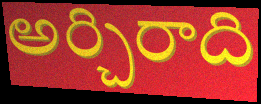
అర్చిరాది